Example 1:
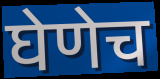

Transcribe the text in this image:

घेणेच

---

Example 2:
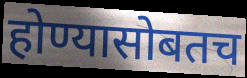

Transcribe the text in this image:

होण्यासोबतच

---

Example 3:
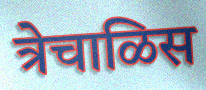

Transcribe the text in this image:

त्रेचाळिस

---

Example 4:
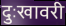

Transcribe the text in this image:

दुःखावरी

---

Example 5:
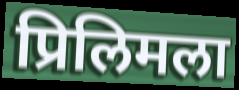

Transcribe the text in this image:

प्रिलिमला